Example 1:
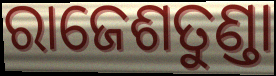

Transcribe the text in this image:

ରାଜେଶତୁଣ୍ଡା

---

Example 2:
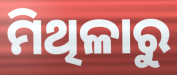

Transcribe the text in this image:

ମିଥିଳାରୁ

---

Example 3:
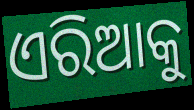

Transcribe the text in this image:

ଏରିଆକୁ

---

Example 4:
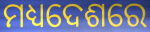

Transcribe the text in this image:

ମଧ୍ୟଦେଶରେ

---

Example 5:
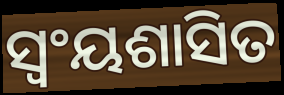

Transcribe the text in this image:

ସ୍ୱଂୟଶାସିତ